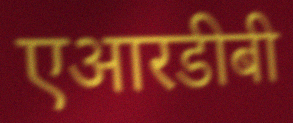
एआरडीबी